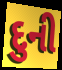
દુની